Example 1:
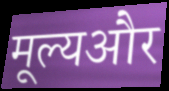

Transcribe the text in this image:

मूल्यऔर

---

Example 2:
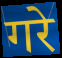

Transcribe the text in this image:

गरे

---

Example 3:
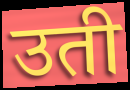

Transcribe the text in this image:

उती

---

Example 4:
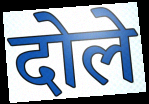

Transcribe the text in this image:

दोले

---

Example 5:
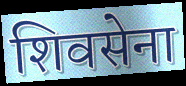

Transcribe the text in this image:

शिवसेना